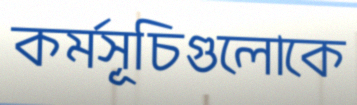
কর্মসূচিগুলোকে